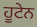
ਹੂਟੇਨ